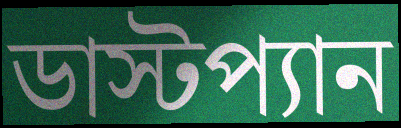
ডাস্টপ্যান